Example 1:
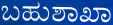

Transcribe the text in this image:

ಬಹುಶಾಖಾ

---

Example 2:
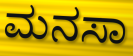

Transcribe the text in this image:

ಮನಸಾ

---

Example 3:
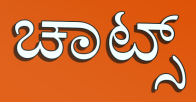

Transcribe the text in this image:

ಚಾಟ್ಸ್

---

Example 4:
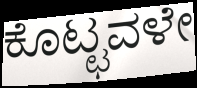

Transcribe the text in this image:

ಕೊಟ್ಟವಳೇ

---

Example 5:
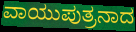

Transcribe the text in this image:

ವಾಯುಪುತ್ರನಾದ